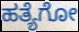
ಹತ್ಯೆಗೋ